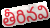
తీరినవి